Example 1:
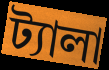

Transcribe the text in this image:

ট্যালা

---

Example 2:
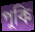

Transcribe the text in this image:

পুকি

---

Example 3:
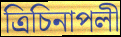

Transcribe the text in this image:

ত্রিচিনাপলী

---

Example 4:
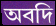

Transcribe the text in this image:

অবদি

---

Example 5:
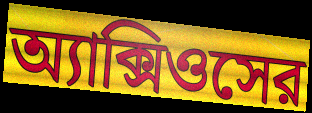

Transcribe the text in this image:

অ্যাক্সিওসের